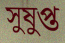
সুষুপ্ত